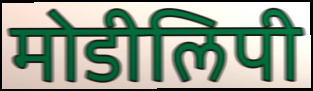
मोडीलिपी